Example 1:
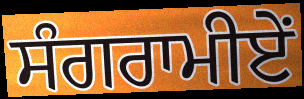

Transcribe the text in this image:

ਸੰਗਰਾਮੀਏਂ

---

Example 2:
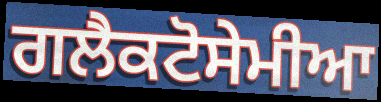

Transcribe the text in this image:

ਗਲੈਕਟੋਸੇਮੀਆ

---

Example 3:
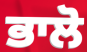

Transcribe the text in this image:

ਭਾਲੋ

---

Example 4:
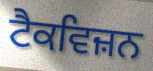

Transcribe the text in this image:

ਟੈਕਵਿਜ਼ਨ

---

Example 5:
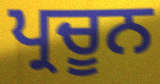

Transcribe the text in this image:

ਪ੍ਰਚੂਨ